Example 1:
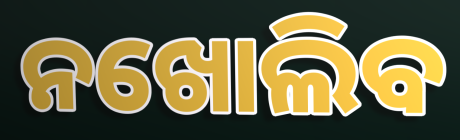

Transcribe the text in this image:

ନଖୋଲିବ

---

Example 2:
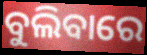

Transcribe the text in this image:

ବୁଲିବାରେ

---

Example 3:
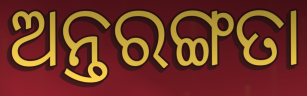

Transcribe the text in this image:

ଅନ୍ତରଙ୍ଗତା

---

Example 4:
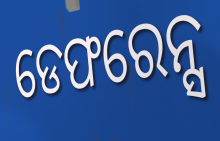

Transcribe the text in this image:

ଡେଫରେନ୍ସ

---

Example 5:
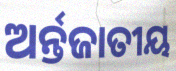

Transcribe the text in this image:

ଅର୍ନ୍ତଜାତୀୟ